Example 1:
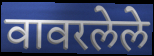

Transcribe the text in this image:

वावरलेले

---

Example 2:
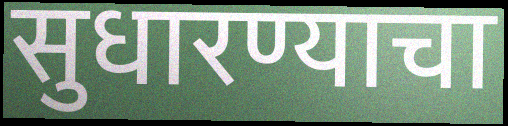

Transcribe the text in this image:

सुधारण्याचा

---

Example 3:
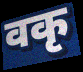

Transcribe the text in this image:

वकृ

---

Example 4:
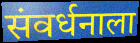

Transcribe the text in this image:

संवर्धनाला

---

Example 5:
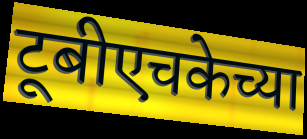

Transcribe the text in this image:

टूबीएचकेच्या